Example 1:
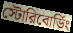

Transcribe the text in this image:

স্টোরিবোর্ডিং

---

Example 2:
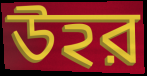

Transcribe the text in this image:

উহর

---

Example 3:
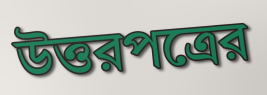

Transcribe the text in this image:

উত্তরপত্রের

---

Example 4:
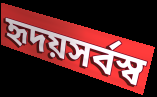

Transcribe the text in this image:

হৃদয়সর্বস্ব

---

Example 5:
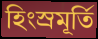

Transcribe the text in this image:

হিংস্রমূর্তি